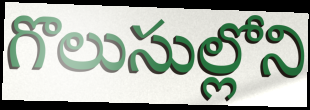
గొలుసుల్లోని